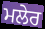
ਮਲੇਰ